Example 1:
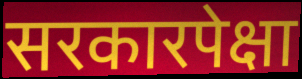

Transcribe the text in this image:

सरकारपेक्षा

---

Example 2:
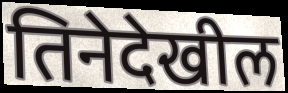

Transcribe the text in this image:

तिनेदेखील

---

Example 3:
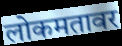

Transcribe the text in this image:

लोकमतावर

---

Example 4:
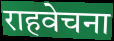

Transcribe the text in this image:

राहवेचना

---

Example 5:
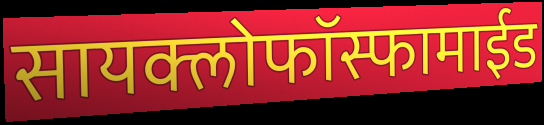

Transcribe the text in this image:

सायक्लोफॉस्फामाईड